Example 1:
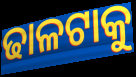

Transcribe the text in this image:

ଢାଳଟାକୁ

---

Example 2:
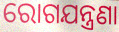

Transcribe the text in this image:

ରୋଗଯନ୍ତ୍ରଣା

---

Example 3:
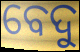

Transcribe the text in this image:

ବେଦୁ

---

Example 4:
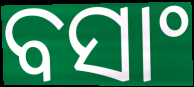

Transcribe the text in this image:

ବସାଂ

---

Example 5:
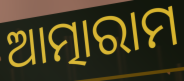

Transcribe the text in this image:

ଆତ୍ମାରାମ